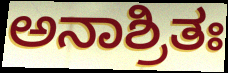
ಅನಾಶ್ರಿತಃ